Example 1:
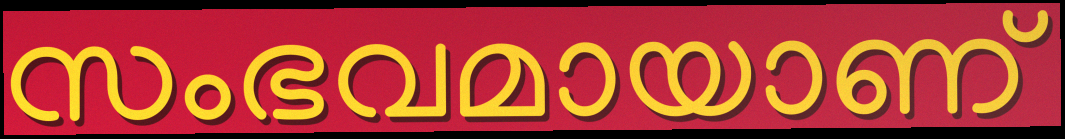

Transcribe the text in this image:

സംഭവമായാണ്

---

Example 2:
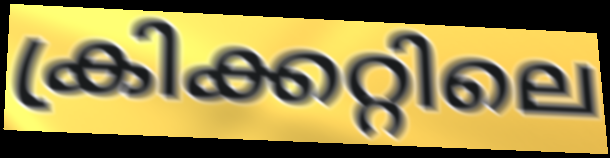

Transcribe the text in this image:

ക്രിക്കറ്റിലെ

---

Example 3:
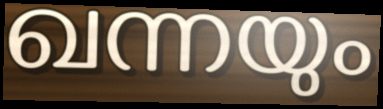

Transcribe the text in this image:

ഖന്നയും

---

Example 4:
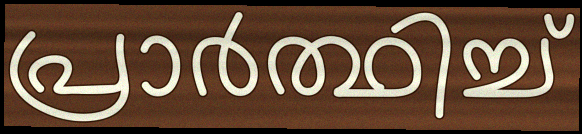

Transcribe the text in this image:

പ്രാർത്ഥിച്ച്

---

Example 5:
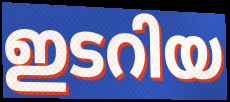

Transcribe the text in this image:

ഇടറിയ